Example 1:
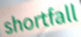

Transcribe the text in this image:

shortfall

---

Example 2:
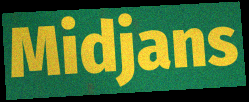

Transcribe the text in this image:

Midjans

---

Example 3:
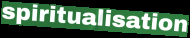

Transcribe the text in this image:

spiritualisation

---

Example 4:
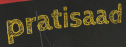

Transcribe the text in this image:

pratisaad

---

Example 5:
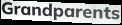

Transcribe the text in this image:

Grandparents